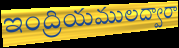
ఇంద్రియములద్వారా